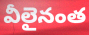
వీలైనంత